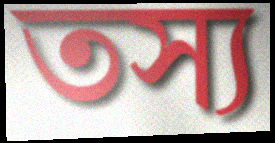
তস্য